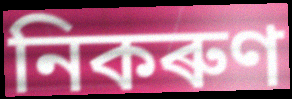
নিকৰুণ